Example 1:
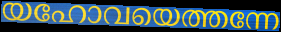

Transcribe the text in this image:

യഹോവയെത്തന്നേ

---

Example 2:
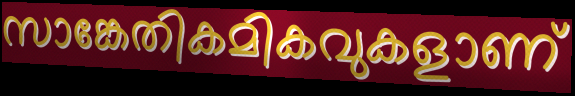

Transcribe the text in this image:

സാങ്കേതികമികവുകളാണ്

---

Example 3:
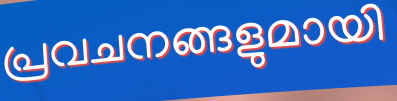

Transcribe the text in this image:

പ്രവചനങ്ങളുമായി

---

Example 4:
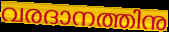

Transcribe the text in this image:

വരദാനത്തിനു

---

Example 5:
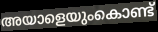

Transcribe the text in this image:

അയാളെയുംകൊണ്ട്